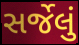
સર્જેલું